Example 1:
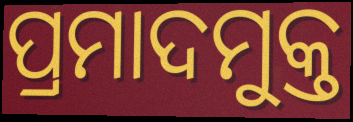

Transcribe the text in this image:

ପ୍ରମାଦମୁକ୍ତ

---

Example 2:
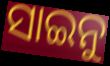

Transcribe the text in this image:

ସାଇନୁ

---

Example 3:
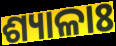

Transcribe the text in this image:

ଶ୍ୟାଳାଃ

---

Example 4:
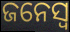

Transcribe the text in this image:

ଜନେସ୍ୱ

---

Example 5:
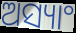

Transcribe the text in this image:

ଅସ୍ୟାଂ